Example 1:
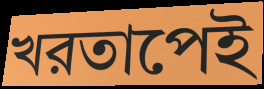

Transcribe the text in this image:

খরতাপেই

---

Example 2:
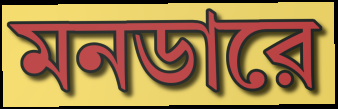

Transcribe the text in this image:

মনডারে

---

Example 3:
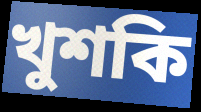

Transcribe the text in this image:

খুশকি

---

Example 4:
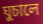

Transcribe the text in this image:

ঘুচালে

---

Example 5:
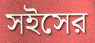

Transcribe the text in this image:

সইসের